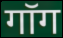
गॉग